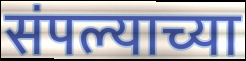
संपल्याच्या